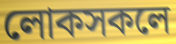
লোকসকলে